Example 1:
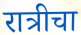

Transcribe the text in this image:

रात्रीचा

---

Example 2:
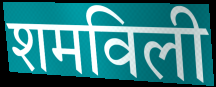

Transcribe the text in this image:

शमविली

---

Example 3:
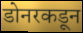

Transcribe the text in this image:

डोनरकडून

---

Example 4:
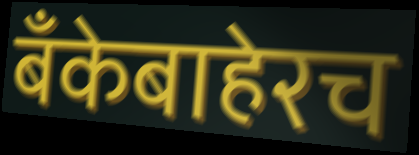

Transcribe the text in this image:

बँकेबाहेरच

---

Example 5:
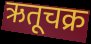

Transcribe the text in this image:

ऋतूचक्र